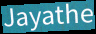
Jayathe